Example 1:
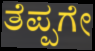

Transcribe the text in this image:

ತೆಪ್ಪಗೇ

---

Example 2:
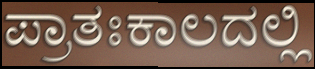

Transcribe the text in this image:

ಪ್ರಾತಃಕಾಲದಲ್ಲಿ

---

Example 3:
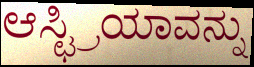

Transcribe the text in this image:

ಆಸ್ಟ್ರಿಯಾವನ್ನು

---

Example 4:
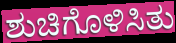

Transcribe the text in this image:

ಶುಚಿಗೊಳಿಸಿತು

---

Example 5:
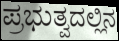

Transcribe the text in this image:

ಪ್ರಭುತ್ವದಲ್ಲಿನ